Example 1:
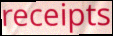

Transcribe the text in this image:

receipts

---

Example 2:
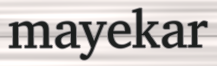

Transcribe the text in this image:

mayekar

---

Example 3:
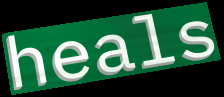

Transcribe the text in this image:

heals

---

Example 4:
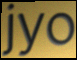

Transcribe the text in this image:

jyo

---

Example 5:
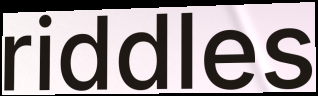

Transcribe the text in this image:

riddles